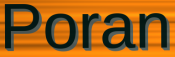
Poran